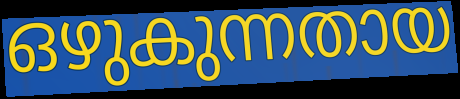
ഒഴുകുന്നതായ